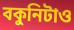
বকুনিটাও